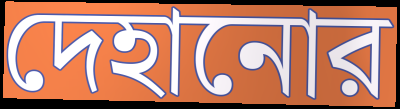
দেহানোর